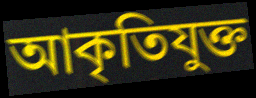
আকৃতিযুক্ত